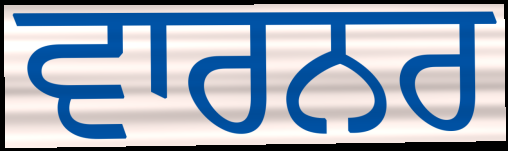
ਵਾਰਨਰ